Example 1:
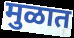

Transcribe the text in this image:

मुळात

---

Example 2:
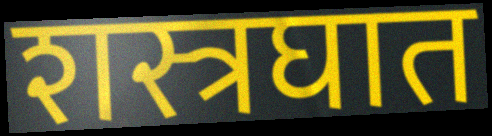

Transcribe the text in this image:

शस्त्रघात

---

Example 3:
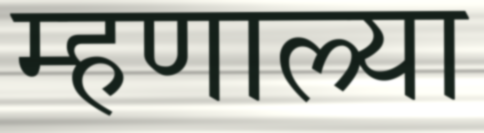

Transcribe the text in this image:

म्हणाल्या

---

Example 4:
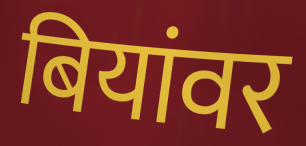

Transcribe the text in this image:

बियांवर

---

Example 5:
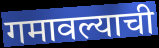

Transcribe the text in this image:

गमावल्याची